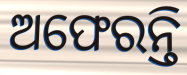
ଅଫେରନ୍ତି